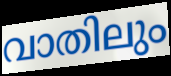
വാതിലും